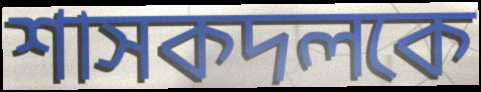
শাসকদলকে